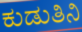
ಕುಡುತಿನಿ